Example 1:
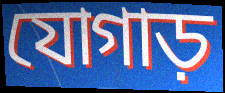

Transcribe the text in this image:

যোগাড়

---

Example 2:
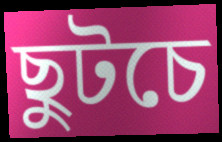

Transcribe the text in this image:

ছুটচে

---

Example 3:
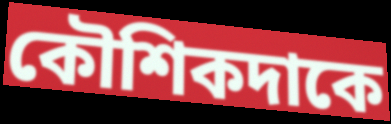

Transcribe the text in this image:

কৌশিকদাকে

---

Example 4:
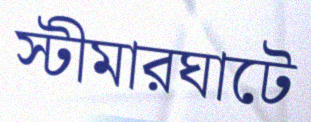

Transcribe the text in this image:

স্টীমারঘাটে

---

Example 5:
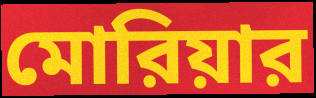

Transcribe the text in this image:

মোরিয়ার